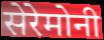
सेरेमोनी